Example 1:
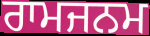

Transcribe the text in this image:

ਰਾਮਜਨਮ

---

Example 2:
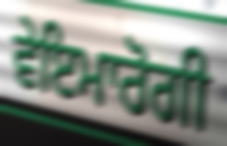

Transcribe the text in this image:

ਵੇਇਮਾਰੋਗੀ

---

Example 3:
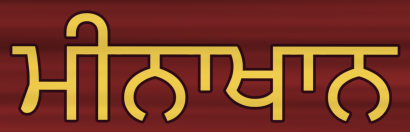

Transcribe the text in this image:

ਮੀਨਾਖਾਨ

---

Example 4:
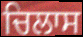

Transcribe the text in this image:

ਚਿਲਾਸ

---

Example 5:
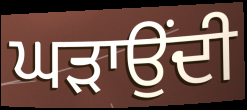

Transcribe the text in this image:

ਘੜਾਉਂਦੀ